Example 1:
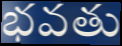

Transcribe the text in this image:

భవతు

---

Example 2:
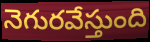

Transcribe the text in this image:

నెగురవేస్తుంది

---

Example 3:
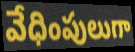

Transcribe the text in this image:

వేధింపులుగా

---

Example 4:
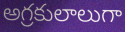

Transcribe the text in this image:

అగ్రకులాలుగా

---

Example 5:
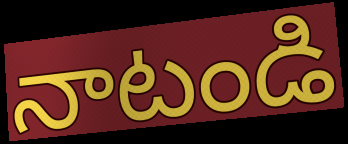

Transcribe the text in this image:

నాటండి